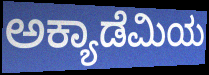
ಅಕ್ಯಾಡೆಮಿಯ